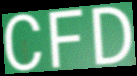
CFD